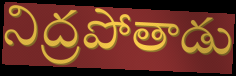
నిద్రపోతాడు